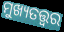
ମୁଖ୍ୟତତ୍ତ୍ୱର